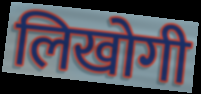
लिखोगी